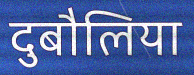
दुबौलिया